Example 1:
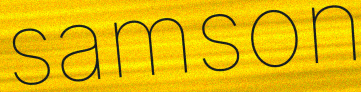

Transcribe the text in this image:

samson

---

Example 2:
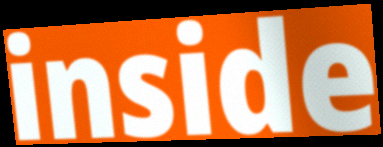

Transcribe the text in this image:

inside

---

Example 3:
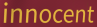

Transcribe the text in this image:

innocent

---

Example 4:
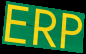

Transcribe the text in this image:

ERP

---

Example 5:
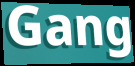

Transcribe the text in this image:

Gang